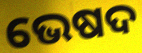
ଭେଷଦ